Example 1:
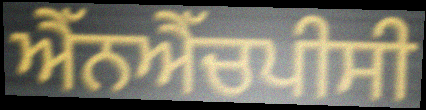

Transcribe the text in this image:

ਐੱਨਐੱਚਪੀਸੀ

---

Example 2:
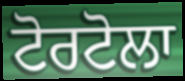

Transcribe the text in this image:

ਟੋਰਟੋਲਾ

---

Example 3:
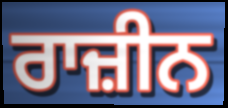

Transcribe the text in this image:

ਰਾਜ਼ੀਨ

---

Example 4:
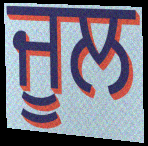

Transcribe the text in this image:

ਜੂਲ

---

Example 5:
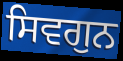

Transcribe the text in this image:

ਸਿਵਗੁਨ